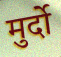
मुर्दो